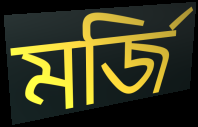
মর্জি